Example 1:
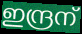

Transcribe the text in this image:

ഇന്ദ്രന്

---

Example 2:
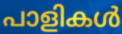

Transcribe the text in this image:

പാളികൾ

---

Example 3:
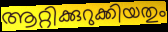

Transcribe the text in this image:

ആറ്റിക്കുറുക്കിയതും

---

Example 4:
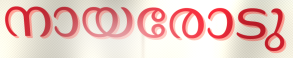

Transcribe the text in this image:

നായരോടു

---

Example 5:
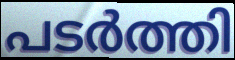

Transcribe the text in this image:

പടർത്തി